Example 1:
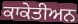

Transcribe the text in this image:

ਕਾਕੇਤੀਅਨ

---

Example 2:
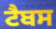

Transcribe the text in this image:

ਟੈਬਸ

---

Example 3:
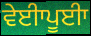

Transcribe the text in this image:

ਵੇਈਾਪੂਈਾ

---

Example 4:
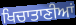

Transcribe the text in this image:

ਖਿਚਾਤਾਣੀਆਂ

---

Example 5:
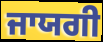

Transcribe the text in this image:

ਜਾਯਗੀ